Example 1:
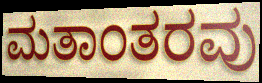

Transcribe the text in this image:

ಮತಾಂತರವು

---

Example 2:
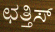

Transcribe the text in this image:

ಛತ್ತಿಸ್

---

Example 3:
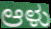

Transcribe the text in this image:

ಆಳು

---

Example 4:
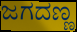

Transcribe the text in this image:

ಜಗದಣ್ಣ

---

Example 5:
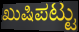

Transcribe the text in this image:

ಖುಷಿಪಟ್ಟು